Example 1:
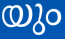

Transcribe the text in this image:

യും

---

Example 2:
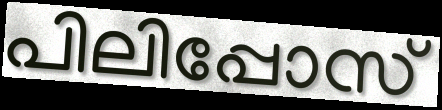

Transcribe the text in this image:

പിലിപ്പോസ്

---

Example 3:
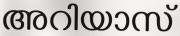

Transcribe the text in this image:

അറിയാസ്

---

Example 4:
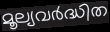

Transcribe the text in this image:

മൂല്യവർദ്ധിത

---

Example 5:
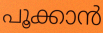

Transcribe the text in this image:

പൂക്കാൻ